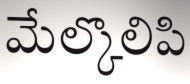
మేల్కొలిపి